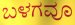
ಬಳಗವೂ